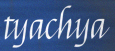
tyachya